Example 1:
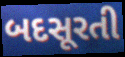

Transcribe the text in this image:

બદસૂરતી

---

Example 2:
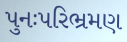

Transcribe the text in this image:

પુનઃપરિભ્રમણ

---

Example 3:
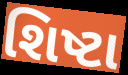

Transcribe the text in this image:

શિષ્ટા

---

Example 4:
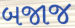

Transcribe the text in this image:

બજાજ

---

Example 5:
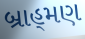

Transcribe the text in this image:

બ્રાહ્‌મણ